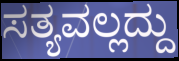
ಸತ್ಯವಲ್ಲದ್ದು